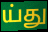
ய்து